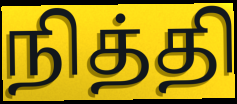
நித்தி